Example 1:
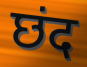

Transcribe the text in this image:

छंद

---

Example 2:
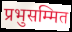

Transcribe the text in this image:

प्रभुसम्मित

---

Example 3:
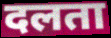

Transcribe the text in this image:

दलता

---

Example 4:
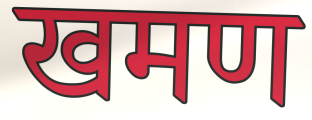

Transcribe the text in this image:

खमण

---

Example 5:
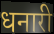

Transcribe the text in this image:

धनारी